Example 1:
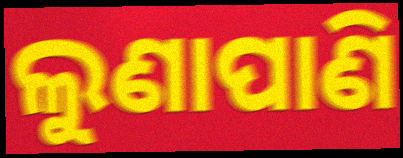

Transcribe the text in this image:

ଲୁଣାପାଣି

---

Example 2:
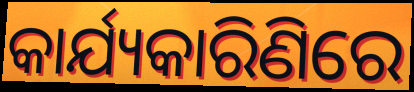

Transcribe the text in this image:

କାର୍ଯ୍ୟକାରିଣିରେ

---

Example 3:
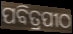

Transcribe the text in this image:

ପବିତ୍ରପୀଠ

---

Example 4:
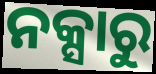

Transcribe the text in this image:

ନକ୍ସାରୁ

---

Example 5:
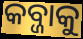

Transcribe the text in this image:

କବ୍ଜାକୁ